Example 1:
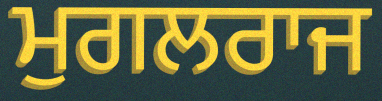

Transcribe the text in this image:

ਮੁਗਲਰਾਜ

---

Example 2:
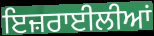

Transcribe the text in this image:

ਇਜ਼ਰਾਈਲੀਆਂ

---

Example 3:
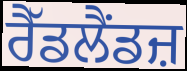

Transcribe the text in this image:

ਰੈੱਡਲੈਂਡਜ਼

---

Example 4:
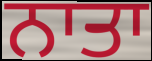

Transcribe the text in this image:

ਨਾਤਾ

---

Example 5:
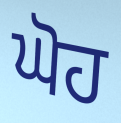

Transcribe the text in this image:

ਘੋਹ